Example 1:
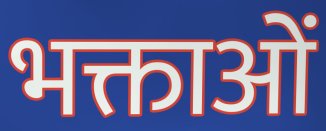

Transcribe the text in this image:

भक्ताओं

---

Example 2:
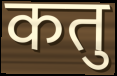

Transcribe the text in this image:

कतु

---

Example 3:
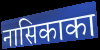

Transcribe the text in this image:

नासिकाका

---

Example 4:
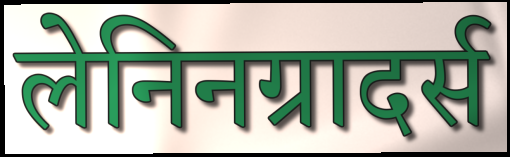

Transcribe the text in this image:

लेनिनग्रादर्स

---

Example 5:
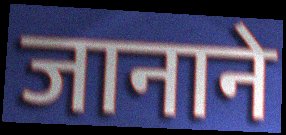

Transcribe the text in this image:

जानाने